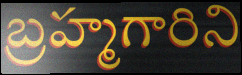
బ్రహ్మగారిని